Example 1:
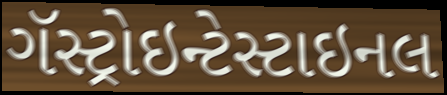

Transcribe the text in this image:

ગૅસ્ટ્રોઇન્ટેસ્ટાઇનલ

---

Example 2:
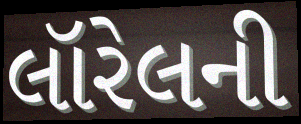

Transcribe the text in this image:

લૉરેલની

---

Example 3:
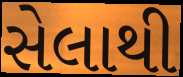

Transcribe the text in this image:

સેલાથી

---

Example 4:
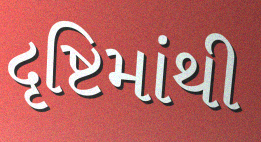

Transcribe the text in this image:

દૃષ્ટિમાંથી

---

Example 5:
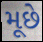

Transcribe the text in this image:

મૂછે